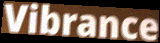
Vibrance